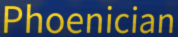
Phoenician